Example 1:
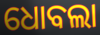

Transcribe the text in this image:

ଧୋବଲା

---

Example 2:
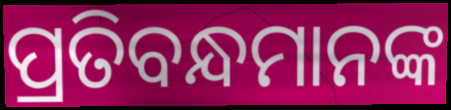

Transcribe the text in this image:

ପ୍ରତିବନ୍ଧମାନଙ୍କ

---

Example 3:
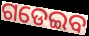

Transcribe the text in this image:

ଗଡେଇବ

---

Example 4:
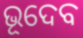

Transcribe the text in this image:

ଭୂଦେବ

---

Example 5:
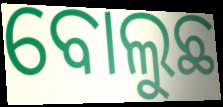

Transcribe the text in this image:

ବୋଲୁଛ